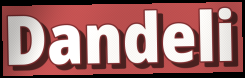
Dandeli